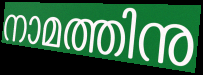
നാമത്തിനു